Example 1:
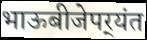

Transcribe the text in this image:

भाऊबीजेपर्यंत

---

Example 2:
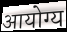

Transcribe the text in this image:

आयोग्य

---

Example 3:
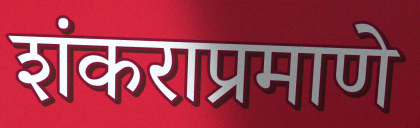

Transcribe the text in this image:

शंकराप्रमाणे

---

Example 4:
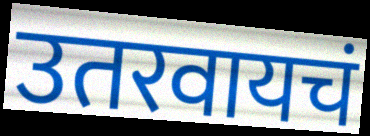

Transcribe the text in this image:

उतरवायचं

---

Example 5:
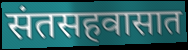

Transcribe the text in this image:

संतसहवासात